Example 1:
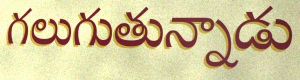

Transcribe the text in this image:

గలుగుతున్నాడు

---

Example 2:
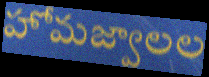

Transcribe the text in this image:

హోమజ్వాలల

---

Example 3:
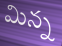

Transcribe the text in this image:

మిన్న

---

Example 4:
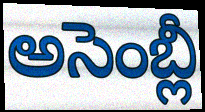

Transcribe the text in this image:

అసెంబ్లీ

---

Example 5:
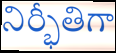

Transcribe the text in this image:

నిర్భీతిగా